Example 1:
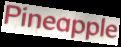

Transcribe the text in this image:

Pineapple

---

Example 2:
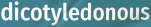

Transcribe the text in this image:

dicotyledonous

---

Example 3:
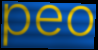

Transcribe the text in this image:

peo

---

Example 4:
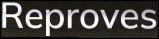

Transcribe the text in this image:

Reproves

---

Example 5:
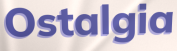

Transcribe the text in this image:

Ostalgia